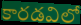
కారడవిలో